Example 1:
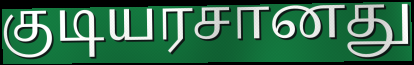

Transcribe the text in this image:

குடியரசானது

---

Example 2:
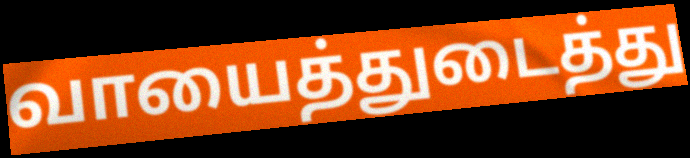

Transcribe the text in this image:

வாயைத்துடைத்து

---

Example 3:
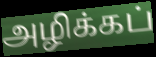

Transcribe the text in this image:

அழிக்கப்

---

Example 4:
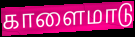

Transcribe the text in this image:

காளைமாடு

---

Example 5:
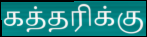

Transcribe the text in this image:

கத்தரிக்கு